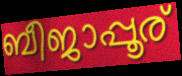
ബീജാപ്പൂര്